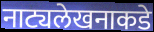
नाट्यलेखनाकडे